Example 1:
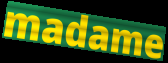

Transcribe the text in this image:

madame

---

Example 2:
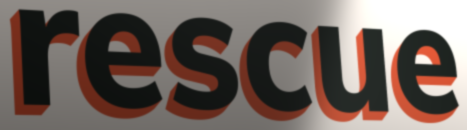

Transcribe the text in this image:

rescue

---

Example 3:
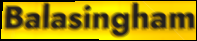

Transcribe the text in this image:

Balasingham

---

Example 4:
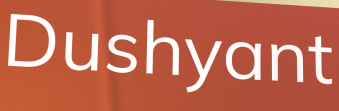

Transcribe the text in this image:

Dushyant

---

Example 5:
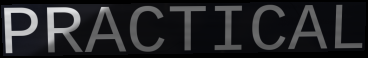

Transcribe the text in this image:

PRACTICAL